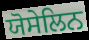
ਯੋਸੇਲਿਨ